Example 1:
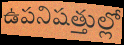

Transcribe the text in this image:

ఉపనిషత్తుల్లో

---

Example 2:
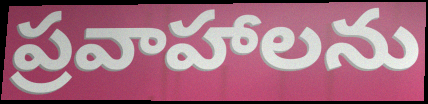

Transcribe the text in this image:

ప్రవాహాలను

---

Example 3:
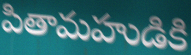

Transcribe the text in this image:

పితామహుడికి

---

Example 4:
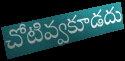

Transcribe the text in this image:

చోటివ్వకూడదు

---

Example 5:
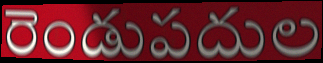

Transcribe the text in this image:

రెండుపదుల